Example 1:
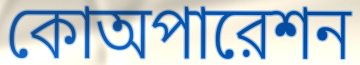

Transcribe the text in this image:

কোঅপারেশন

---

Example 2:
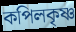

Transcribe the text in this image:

কপিলকৃষ্ণ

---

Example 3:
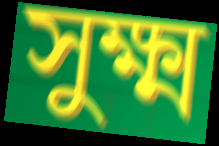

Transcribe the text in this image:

সুক্ষ্ম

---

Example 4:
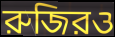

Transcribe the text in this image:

রুজিরও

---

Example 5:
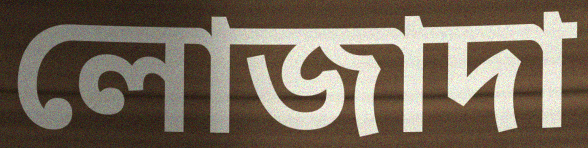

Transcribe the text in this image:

লোজাদা